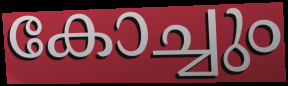
കോച്ചും